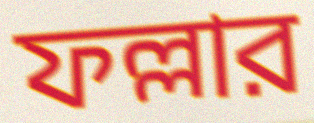
ফল্লার